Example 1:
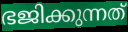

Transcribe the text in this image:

ഭജിക്കുന്നത്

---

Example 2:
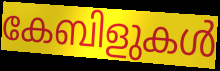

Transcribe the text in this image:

കേബിളുകൾ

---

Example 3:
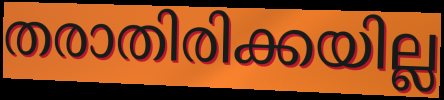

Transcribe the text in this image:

തരാതിരിക്കയില്ല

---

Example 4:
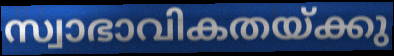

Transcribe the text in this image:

സ്വാഭാവികതയ്ക്കു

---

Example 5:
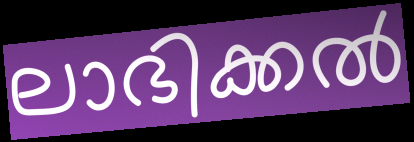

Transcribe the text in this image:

ലാഭിക്കൽ